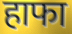
हाफा